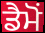
ਡੈਮੋਂ